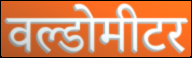
वल्डोमीटर